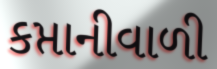
કપ્તાનીવાળી